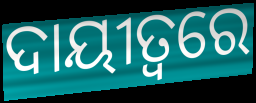
ଦାୟୀତ୍ଵରେ